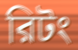
রিটং